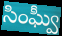
సింఘ్వీ